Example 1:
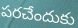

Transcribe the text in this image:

పరచేందుకు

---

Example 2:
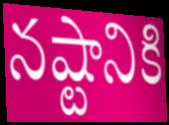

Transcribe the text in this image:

నష్టానికి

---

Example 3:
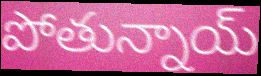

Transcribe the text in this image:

పోతున్నాయ్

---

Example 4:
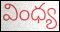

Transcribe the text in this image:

వింధ్య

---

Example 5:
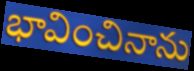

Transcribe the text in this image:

భావించినాను